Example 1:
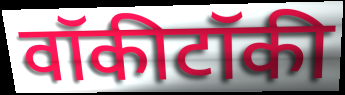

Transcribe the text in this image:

वॉकीटॉकी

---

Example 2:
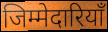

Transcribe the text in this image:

जिम्मेदारियाँ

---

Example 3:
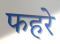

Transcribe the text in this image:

फहरे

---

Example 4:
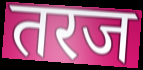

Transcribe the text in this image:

तरज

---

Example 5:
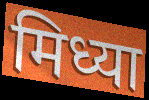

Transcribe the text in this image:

मिध्या